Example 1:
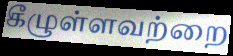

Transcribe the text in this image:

கீழுள்ளவற்றை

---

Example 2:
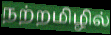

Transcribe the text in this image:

நற்றமிழில்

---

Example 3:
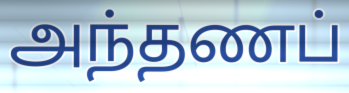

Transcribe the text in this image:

அந்தணப்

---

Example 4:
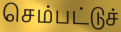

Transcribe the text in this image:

செம்பட்டுச்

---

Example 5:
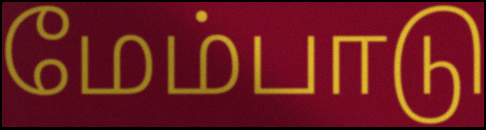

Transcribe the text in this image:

மேம்பாடு